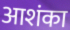
आशंका